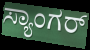
ಸ್ಯಾಂಗರ್